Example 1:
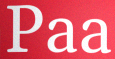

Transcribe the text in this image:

Paa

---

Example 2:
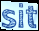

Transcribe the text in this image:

sit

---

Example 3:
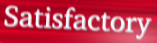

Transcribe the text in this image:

Satisfactory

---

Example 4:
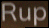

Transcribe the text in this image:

Rup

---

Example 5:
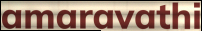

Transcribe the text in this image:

amaravathi